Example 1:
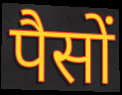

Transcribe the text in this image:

पैसों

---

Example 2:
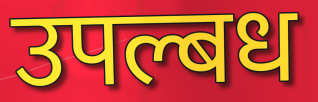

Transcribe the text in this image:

उपल्‍बध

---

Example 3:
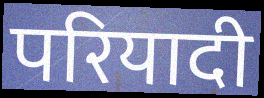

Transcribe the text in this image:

परियादी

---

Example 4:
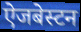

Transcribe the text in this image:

ऐजबेस्टन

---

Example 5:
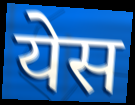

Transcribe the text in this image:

येस